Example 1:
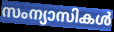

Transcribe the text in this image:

സംന്യാസികൾ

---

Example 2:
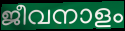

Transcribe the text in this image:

ജീവനാളം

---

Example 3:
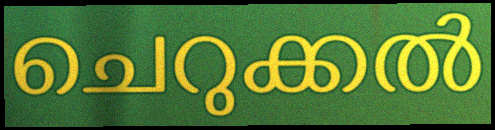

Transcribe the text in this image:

ചെറുക്കൽ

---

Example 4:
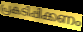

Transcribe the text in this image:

പ്രകടിപ്പിക്കണം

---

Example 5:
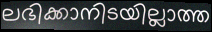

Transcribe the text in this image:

ലഭിക്കാനിടയില്ലാത്ത